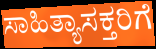
ಸಾಹಿತ್ಯಾಸಕ್ತರಿಗೆ